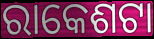
ରାକେଶଟା